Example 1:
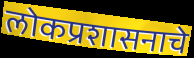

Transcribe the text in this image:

लोकप्रशासनाचे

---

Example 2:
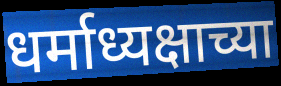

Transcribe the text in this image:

धर्माध्यक्षाच्या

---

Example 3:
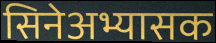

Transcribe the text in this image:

सिनेअभ्यासक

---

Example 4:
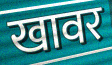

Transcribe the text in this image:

खावर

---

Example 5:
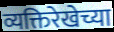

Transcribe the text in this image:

व्यक्तिरेखेच्या